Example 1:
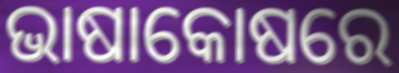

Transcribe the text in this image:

ଭାଷାକୋଷରେ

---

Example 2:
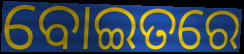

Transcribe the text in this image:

ବୋଇତରେ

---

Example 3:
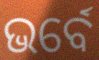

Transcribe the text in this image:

ଭର୍ବେ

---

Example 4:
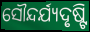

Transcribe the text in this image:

ସୌନ୍ଦର୍ଯ୍ୟଦୃଷ୍ଟି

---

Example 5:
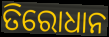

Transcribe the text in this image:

ତିରୋଧାନ